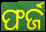
ଫର୍ଜ